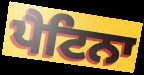
ਪੈਟਿਨਾ